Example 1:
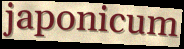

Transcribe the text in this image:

japonicum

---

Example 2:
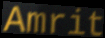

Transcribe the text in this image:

Amrit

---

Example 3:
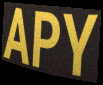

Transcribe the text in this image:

APY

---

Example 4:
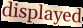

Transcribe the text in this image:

displayed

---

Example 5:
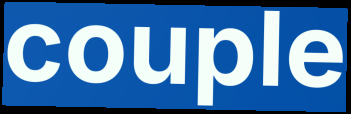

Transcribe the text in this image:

couple